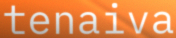
tenaiva